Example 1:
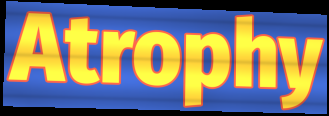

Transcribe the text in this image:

Atrophy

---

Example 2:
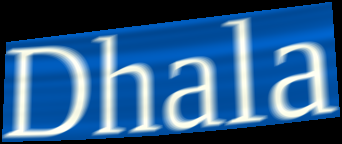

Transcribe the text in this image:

Dhala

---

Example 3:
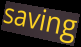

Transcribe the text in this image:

saving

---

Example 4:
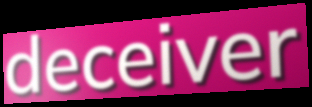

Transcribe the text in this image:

deceiver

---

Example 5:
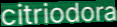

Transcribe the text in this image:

citriodora